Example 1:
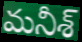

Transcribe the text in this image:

మనీశ్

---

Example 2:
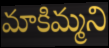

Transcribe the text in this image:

మాకిమ్మని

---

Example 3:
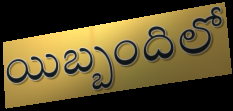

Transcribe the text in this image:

యిబ్బందిలో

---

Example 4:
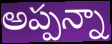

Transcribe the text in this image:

అప్పన్నా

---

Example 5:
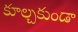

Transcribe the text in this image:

కూల్చకుండా